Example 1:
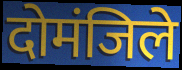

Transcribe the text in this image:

दोमंजिले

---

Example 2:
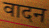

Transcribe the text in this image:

वादन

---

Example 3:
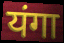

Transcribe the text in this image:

यंगा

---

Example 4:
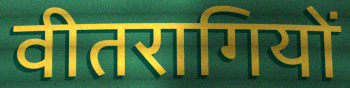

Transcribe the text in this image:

वीतरागियों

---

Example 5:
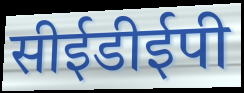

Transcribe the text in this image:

सीईडीईपी